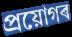
প্ৰয়োগৰ